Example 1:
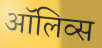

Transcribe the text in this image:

ऑलिव्स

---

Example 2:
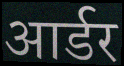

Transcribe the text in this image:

आर्डर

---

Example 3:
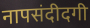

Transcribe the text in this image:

नापसंदीदगी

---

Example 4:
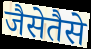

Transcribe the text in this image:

जैसेतैसे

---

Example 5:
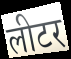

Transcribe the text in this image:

लीटर